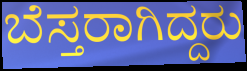
ಬೆಸ್ತರಾಗಿದ್ದರು